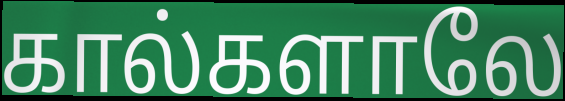
கால்களாலே